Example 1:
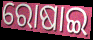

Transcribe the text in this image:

ରୋଷାଇ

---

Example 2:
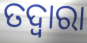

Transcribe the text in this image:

ତଦ୍ୱାରା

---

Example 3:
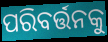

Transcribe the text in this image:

ପରିବର୍ତ୍ତନକୁ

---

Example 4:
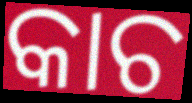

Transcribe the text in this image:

କାଚ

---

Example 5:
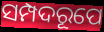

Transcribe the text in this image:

ସମ୍ପଦରୂପେ